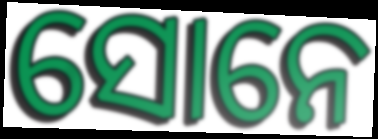
ସୋନେ